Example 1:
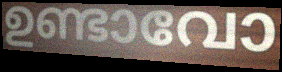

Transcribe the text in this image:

ഉണ്ടാവോ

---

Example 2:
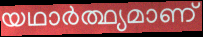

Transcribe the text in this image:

യഥാർത്ഥ്യമാണ്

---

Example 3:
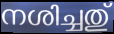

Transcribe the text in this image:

നശിച്ചതു്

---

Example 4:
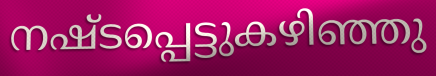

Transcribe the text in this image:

നഷ്ടപ്പെട്ടുകഴിഞ്ഞു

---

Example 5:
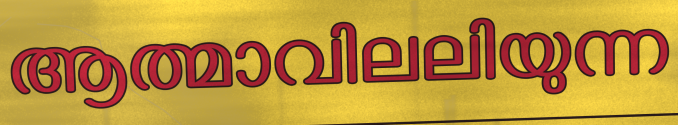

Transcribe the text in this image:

ആത്മാവിലലിയുന്ന